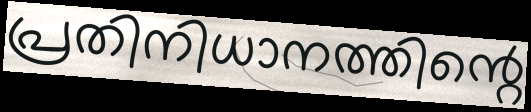
പ്രതിനിധാനത്തിന്റെ